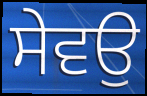
ਸੇਵਉ